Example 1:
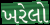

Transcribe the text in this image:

ખરેલો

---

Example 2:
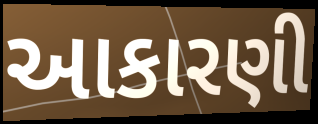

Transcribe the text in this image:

આકારણી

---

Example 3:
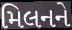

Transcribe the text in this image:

મિલનને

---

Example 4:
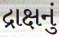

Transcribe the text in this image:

દ્રાક્ષનું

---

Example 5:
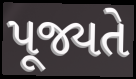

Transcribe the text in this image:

પૂજ્યતે